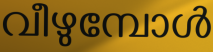
വീഴുമ്പോൾ